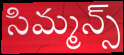
సిమ్మన్స్